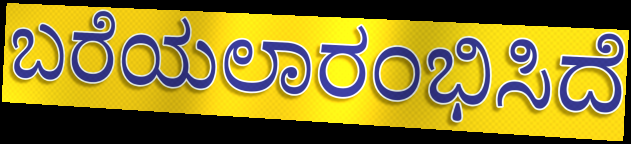
ಬರೆಯಲಾರಂಭಿಸಿದೆ